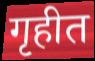
गृहीत